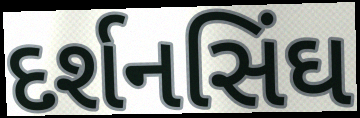
દર્શનસિંઘ